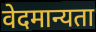
वेदमान्यता